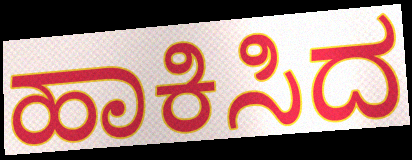
ಹಾಕಿಸಿದ